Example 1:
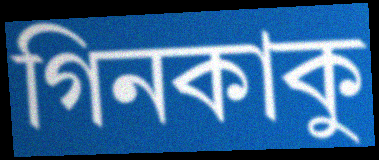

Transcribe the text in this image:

গিনকাকু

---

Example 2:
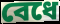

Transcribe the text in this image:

বেধে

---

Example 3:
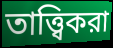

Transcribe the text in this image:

তাত্ত্বিকরা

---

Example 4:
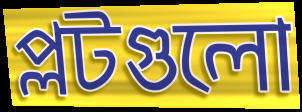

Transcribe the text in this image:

প্লটগুলো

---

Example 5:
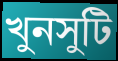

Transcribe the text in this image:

খুনসুটি